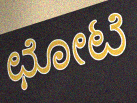
ಛೋಟೆ